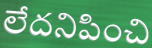
లేదనిపించి